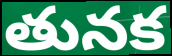
తునక